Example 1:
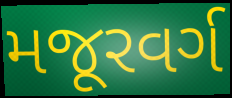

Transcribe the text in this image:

મજૂરવર્ગ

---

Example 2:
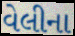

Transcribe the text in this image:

વેલીના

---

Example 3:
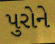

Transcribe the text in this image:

પુરોને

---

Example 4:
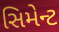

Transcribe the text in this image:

સિમેન્ટ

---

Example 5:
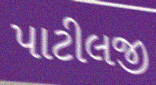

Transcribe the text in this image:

પાટીલજી